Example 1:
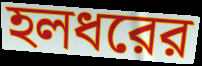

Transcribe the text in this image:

হলধরের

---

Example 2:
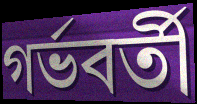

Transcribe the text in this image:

গর্ভবর্তী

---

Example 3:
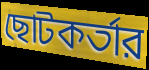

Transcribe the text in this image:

ছোটকর্তার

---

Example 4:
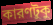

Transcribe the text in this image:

কারণটুকু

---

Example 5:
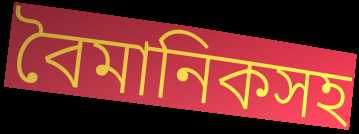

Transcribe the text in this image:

বৈমানিকসহ